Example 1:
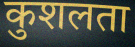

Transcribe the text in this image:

कुशलता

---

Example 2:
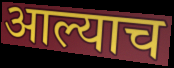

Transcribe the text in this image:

आल्याच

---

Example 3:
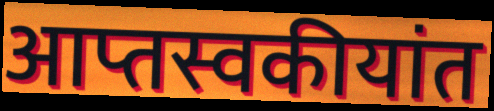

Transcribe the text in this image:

आप्तस्वकीयांत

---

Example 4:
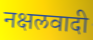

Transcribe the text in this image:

नक्षलवादी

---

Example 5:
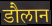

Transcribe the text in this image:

डौलान